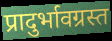
प्रादुर्भावग्रस्त